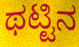
ಥಟ್ಟಿನ